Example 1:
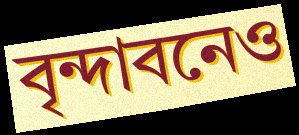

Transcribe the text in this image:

বৃন্দাবনেও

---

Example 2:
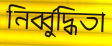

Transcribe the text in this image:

নির্ব্বুদ্ধিতা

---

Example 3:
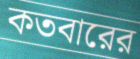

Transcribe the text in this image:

কতবারের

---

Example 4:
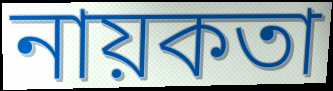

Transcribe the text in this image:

নায়কতা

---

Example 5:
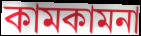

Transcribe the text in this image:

কামকামনা